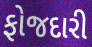
ફોજદારી